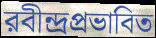
রবীন্দ্রপ্রভাবিত